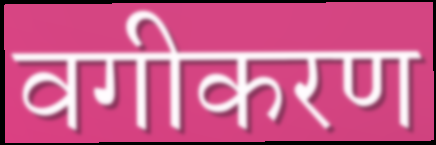
वगीकरण